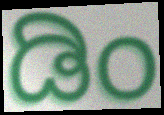
ಡಿಂ